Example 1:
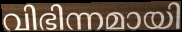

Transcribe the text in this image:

വിഭിന്നമായി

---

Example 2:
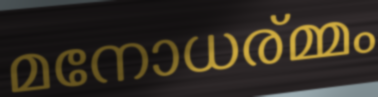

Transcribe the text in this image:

മനോധര്മ്മം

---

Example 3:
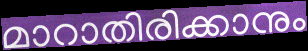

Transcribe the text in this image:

മാറാതിരിക്കാനും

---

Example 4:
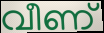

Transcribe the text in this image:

വീണ്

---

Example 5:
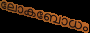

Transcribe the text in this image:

ലോകബോധം